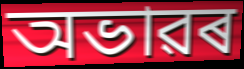
অভাৱৰ